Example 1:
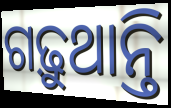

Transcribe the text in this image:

ଗଢ଼ୁଥାନ୍ତି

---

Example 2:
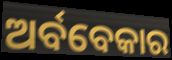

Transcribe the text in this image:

ଅର୍ବବେକାର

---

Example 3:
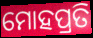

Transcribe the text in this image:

ମୋହପ୍ରତି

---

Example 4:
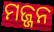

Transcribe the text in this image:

ମଜ୍ଜନ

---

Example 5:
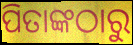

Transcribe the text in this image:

ପିତାଙ୍କଠାରୁ